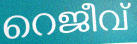
റെജീവ്